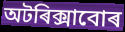
অটৰিক্সাবোৰ